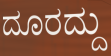
ದೂರದ್ದು